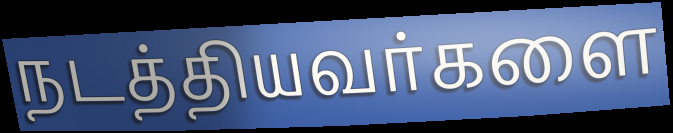
நடத்தியவர்களை